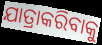
ଯାତ୍ରାକରିବାକୁ